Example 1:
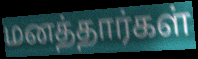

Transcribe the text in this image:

மனத்தார்கள்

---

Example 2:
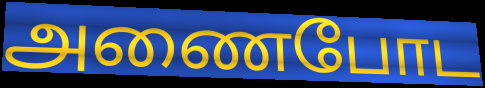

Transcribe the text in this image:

அணைபோட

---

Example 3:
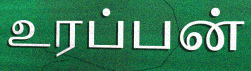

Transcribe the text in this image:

உரப்பன்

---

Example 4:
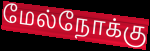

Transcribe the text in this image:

மேல்நோக்கு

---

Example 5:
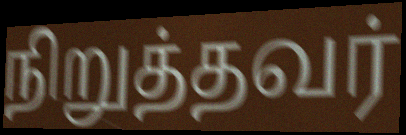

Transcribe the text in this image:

நிறுத்தவர்